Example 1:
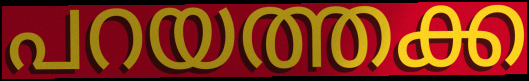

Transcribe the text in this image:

പറയത്തക്ക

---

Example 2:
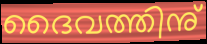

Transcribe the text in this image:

ദൈവത്തിനു്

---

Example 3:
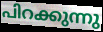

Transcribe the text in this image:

പിറക്കുന്നു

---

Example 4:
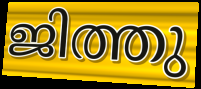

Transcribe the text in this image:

ജിത്തു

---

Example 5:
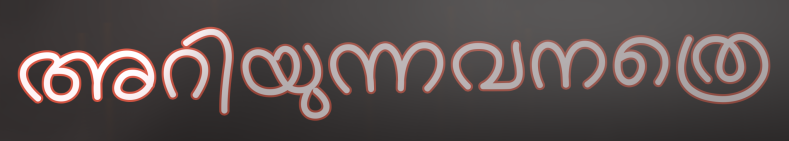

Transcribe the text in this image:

അറിയുന്നവനത്രെ